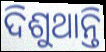
ଦିଶୁଥାନ୍ତି